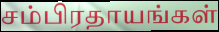
சம்பிரதாயங்கள்